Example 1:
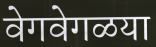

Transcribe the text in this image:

वेगवेगळया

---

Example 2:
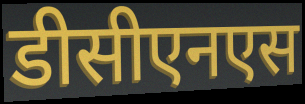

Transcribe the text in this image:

डीसीएनएस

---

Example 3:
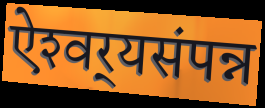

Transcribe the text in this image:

ऐश्वर्यसंपन्न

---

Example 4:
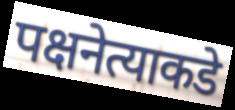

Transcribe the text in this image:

पक्षनेत्याकडे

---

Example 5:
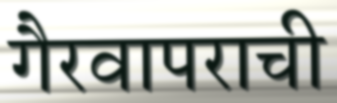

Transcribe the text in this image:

गैरवापराची